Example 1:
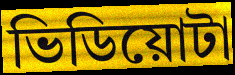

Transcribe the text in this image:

ভিডিয়োটা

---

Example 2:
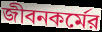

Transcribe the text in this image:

জীবনকর্মের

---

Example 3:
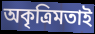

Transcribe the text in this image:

অকৃত্রিমতাই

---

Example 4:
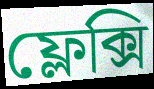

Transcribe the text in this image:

ফ্লেক্সি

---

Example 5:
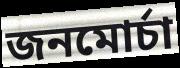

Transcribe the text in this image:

জনমোর্চা